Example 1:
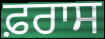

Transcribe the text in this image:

ਫ਼ਰਾਸ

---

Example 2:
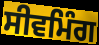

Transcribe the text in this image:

ਸੀਵਮਿੰਗ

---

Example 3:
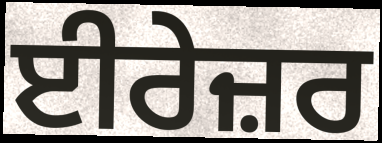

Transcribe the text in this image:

ਈਰੇਜ਼ਰ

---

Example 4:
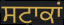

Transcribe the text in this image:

ਸਟਾਕਾਂ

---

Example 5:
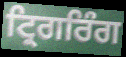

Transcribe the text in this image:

ਟ੍ਰਿਗਰਿੰਗ